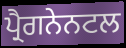
ਪ੍ਰੈਗਨੇਨਟਲ